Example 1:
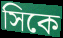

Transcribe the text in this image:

সিকে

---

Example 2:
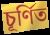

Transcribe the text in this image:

চূর্ণিত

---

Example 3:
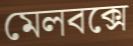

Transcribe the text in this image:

মেলবক্সে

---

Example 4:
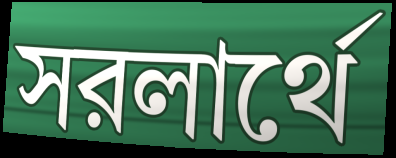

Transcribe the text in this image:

সরলার্থে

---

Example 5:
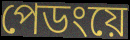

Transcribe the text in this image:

পেডংয়ে